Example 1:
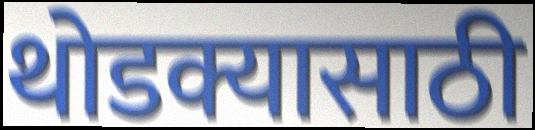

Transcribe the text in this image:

थोडक्यासाठी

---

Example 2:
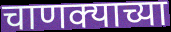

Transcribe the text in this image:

चाणक्याच्या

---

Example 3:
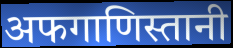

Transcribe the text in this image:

अफगाणिस्तानी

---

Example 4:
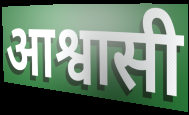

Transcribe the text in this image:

आश्वासी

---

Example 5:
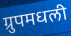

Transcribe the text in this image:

ग्रुपमधली